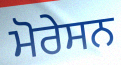
ਮੋਰੇਸਨ